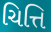
ચિત્તિ